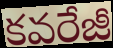
కవరేజీ